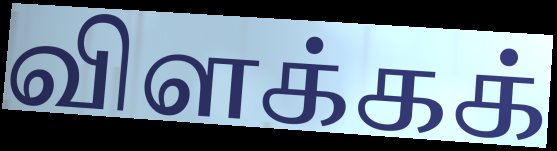
விளக்கக்